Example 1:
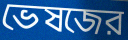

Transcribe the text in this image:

ভেষজের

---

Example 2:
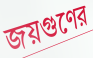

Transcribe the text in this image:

জয়গুণের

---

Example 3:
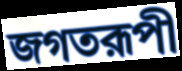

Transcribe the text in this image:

জগতরূপী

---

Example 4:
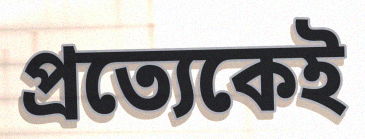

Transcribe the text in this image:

প্রত্যেকেই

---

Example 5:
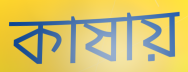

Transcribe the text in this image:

কাষায়